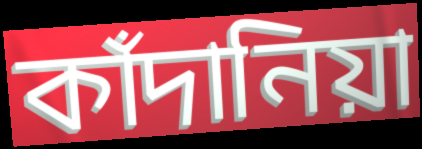
কাঁদানিয়া